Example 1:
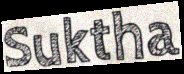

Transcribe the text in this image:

Suktha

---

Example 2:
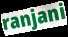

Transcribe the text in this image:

ranjani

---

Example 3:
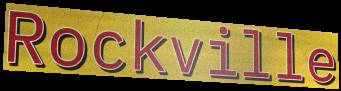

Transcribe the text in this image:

Rockville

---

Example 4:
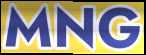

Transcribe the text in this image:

MNG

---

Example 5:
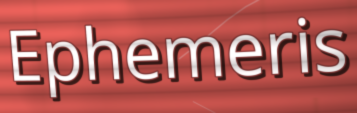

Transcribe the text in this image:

Ephemeris